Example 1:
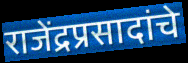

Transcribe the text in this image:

राजेंद्रप्रसादांचे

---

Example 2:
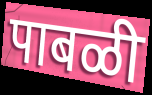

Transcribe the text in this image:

पाबळी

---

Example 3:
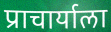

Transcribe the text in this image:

प्राचार्याला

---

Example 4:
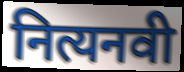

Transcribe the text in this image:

नित्यनवी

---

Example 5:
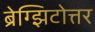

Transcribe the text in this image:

ब्रेग्झिटोत्तर